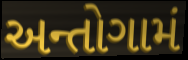
અન્તોગામં